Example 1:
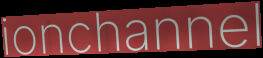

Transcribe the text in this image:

ionchannel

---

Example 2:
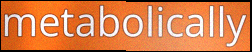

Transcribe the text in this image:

metabolically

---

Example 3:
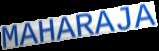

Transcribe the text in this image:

MAHARAJA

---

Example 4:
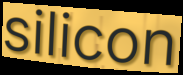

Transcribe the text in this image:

silicon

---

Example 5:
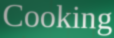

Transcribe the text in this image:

Cooking